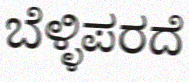
ಬೆಳ್ಳಿಪರದೆ